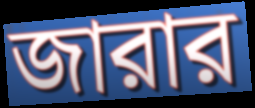
জারার